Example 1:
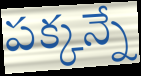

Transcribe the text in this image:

పక్కన్నే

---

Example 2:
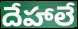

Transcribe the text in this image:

దేహాలే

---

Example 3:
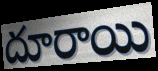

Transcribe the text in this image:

దూరాయి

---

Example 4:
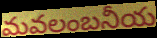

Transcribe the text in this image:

మవలంబనీయ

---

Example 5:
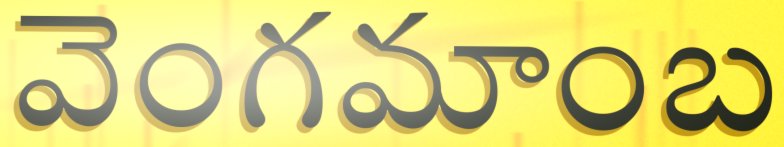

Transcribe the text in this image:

వెంగమాంబ